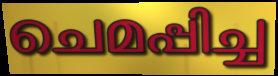
ചെമപ്പിച്ച